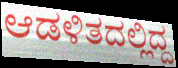
ಆಡಳಿತದಲ್ಲಿದ್ದ